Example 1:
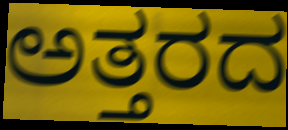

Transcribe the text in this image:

ಅತ್ತರದ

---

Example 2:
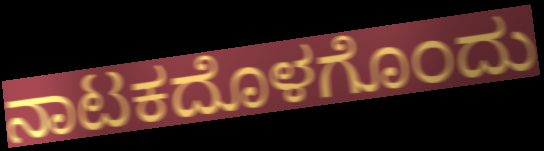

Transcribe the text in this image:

ನಾಟಕದೊಳಗೊಂದು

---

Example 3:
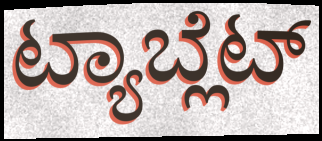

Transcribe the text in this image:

ಟ್ಯಾಬ್ಲೆಟ್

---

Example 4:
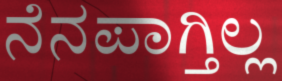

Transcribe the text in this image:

ನೆನಪಾಗ್ತಿಲ್ಲ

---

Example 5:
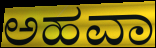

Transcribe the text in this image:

ಅಹವಾ